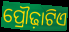
ପ୍ରୌଢ଼ାଟିଏ